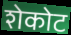
शेकोट